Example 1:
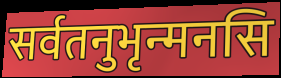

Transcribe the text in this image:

सर्वतनुभृन्मनसि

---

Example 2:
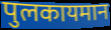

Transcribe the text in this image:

पुलकायमान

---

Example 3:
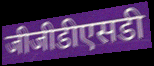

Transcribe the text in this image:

जीजीडीएसडी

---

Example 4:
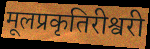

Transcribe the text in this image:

मूलप्रकृतिरीश्वरी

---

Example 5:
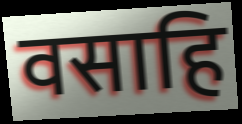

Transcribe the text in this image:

वसाहि